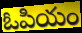
ఓపియం